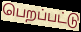
பெறப்பட்டு